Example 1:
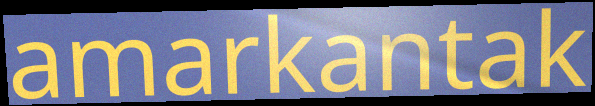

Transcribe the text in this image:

amarkantak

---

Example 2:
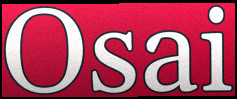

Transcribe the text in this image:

Osai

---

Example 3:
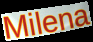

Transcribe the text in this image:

Milena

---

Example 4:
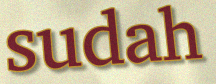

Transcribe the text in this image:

sudah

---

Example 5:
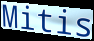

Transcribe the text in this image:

Mitis